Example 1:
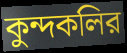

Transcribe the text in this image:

কুন্দকলির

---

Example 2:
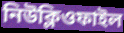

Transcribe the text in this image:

নিউক্লিওফাইল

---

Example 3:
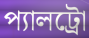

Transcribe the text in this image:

প্যালট্রো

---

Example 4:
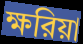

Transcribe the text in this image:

ক্ষরিয়া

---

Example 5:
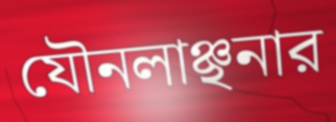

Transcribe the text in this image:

যৌনলাঞ্ছনার